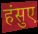
हंसुए